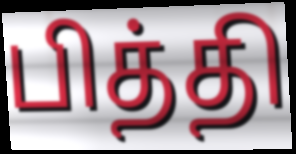
பித்தி